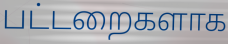
பட்டறைகளாக